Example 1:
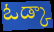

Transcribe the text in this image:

ఓడ్కా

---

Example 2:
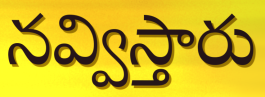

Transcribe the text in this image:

నవ్విస్తారు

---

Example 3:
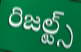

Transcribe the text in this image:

రిజల్ట్స్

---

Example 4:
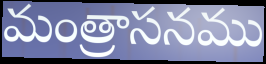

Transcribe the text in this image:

మంత్రాసనము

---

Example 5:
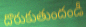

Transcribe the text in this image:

దొరుకుతుందండీ